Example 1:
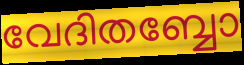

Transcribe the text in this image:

വേദിതബ്ബോ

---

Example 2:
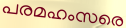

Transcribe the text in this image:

പരമഹംസരെ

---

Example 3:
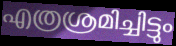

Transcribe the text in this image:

എത്രശ്രമിച്ചിട്ടും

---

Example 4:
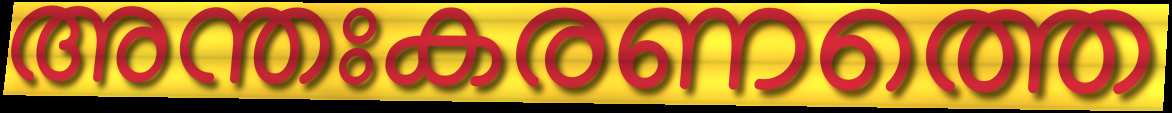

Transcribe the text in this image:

അന്തഃകരണത്തെ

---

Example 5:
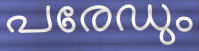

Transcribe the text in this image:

പരേഡും